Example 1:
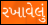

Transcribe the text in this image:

રખાવેલું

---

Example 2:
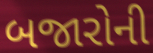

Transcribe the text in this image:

બજારોની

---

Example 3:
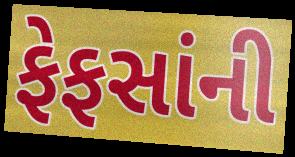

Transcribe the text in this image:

ફેફસાંની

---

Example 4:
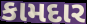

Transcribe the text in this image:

કામદાર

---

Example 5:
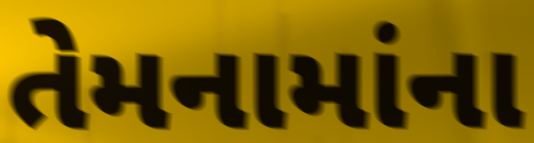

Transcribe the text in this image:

તેમનામાંના